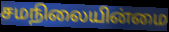
சமநிலையின்மை